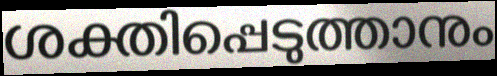
ശക്തിപ്പെടുത്താനും